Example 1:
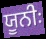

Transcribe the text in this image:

ਯੂਨੀਃ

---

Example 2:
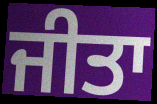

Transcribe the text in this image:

ਜੀਤਾ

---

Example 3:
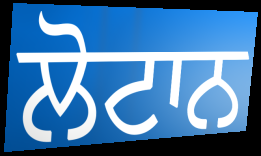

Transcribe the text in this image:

ਲੋਟਾਨ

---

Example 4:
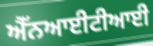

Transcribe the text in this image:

ਐੱਨਆਈਟੀਆਈ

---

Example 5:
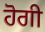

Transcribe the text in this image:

ਹੋਗੀ